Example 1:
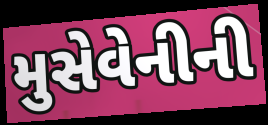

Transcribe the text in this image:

મુસેવેનીની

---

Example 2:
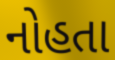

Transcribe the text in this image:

નોહતા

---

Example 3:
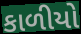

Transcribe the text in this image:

કાળીયો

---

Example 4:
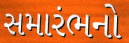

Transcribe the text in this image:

સમારંભનો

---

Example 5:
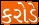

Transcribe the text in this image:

કરોડે